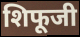
शिफूजी